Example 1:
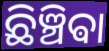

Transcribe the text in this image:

ଛିଞ୍ଚିଵା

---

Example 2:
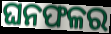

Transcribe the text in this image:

ଘନଫଳର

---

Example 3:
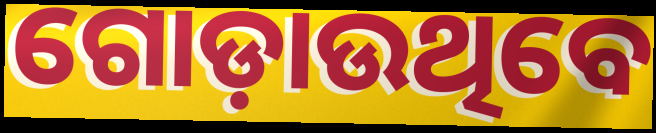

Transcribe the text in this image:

ଗୋଡ଼ାଉଥିବେ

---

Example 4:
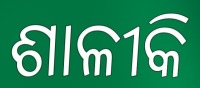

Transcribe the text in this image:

ଶାଳୀକି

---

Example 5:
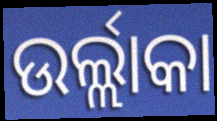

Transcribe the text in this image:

ଉର୍ଲ୍ଲାକା